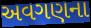
અવગણના